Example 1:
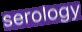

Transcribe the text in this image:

serology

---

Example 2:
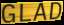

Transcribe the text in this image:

GLAD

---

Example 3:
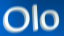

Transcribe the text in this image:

Olo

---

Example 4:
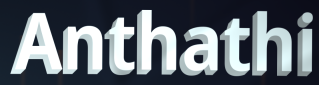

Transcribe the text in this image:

Anthathi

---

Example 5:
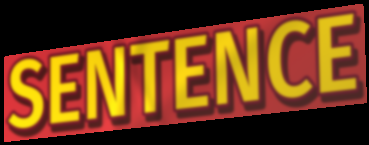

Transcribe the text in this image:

SENTENCE